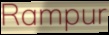
Rampur